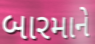
બારમાને